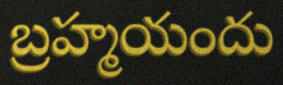
బ్రహ్మయందు